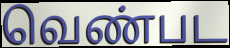
வெண்பட